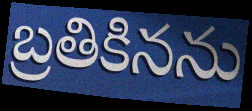
బ్రతికినను